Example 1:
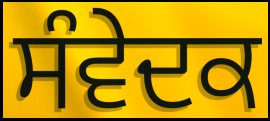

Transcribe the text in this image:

ਸੰਵੇਦਕ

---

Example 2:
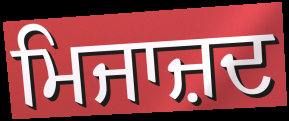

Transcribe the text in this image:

ਮਿਜਾਜ਼ਦ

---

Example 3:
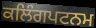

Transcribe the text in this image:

ਕਲਿੰਗਪਟਨਮ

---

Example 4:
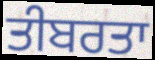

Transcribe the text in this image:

ਤੀਬਰਤਾ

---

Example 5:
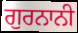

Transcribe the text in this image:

ਗੁਰਨਾਨੀ